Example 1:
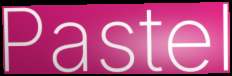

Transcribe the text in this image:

Pastel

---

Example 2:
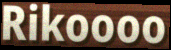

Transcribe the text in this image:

Rikoooo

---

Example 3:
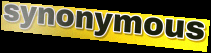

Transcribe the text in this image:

synonymous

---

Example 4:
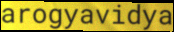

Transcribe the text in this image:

arogyavidya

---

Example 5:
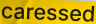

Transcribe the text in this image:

caressed